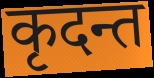
कृदन्त